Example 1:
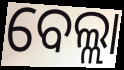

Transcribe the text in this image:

ବେଲ୍ଲା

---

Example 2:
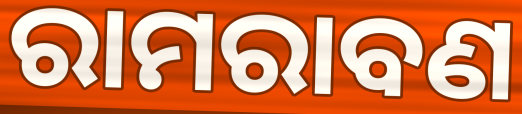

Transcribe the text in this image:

ରାମରାବଣ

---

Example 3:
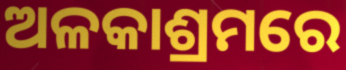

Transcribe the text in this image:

ଅଳକାଶ୍ରମରେ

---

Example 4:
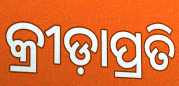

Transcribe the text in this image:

କ୍ରୀଡ଼ାପ୍ରତି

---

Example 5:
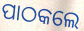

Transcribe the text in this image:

ପାଠକଲେ